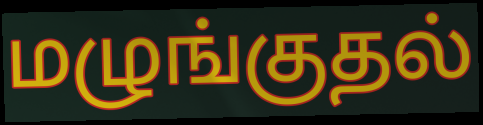
மழுங்குதல்